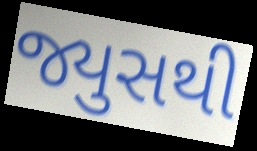
જ્યુસથી